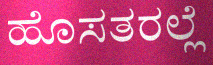
ಹೊಸತರಲ್ಲೆ